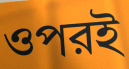
ওপরই